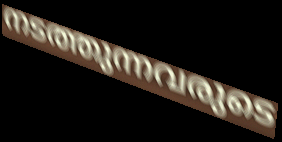
നടത്തുന്നവരുടെ